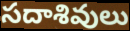
సదాశివులు